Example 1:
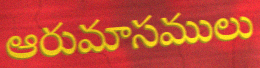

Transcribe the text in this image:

ఆరుమాసములు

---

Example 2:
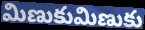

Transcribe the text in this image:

మిణుకుమిణుకు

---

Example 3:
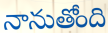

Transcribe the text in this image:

నానుతోంది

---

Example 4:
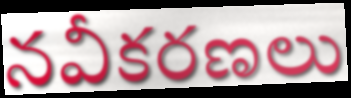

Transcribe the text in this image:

నవీకరణలు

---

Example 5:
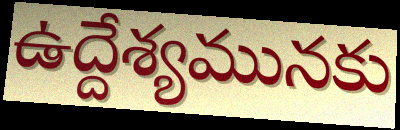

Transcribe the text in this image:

ఉద్దేశ్యమునకు